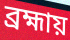
ব্রহ্মায়